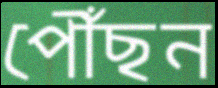
পৌঁছন